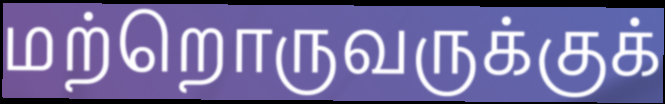
மற்றொருவருக்குக்